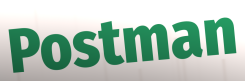
Postman